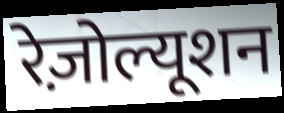
रेज़ोल्यूशन